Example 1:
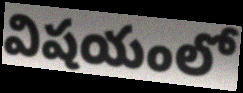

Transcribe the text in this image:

విషయంలో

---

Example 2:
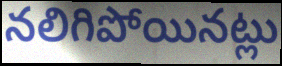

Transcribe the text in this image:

నలిగిపోయినట్లు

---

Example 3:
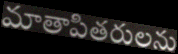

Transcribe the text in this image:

మాతాపితరులను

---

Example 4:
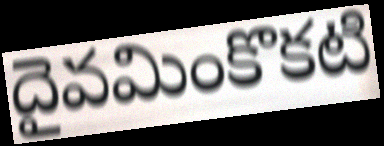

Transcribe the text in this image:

దైవమింకొకటి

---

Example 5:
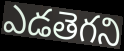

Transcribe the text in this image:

ఎడతెగని